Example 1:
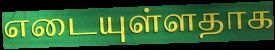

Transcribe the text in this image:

எடையுள்ளதாக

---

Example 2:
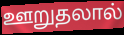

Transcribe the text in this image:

ஊறுதலால்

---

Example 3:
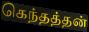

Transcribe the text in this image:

கெந்தத்தன்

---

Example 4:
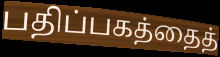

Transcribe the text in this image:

பதிப்பகத்தைத்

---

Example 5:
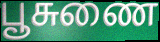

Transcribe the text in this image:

பூசுணை